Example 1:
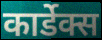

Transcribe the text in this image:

कार्डेक्स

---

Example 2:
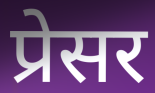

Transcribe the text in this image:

प्रेसर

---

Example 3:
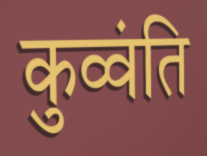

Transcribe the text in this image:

कुव्वंति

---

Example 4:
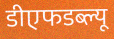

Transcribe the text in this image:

डीएफडब्ल्यू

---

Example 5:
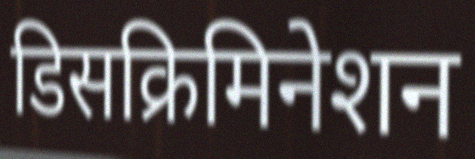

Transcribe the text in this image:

डिसक्रिमिनेशन